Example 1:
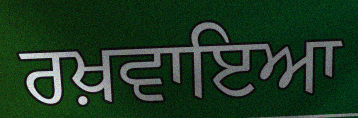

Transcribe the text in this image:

ਰਖ਼ਵਾਇਆ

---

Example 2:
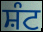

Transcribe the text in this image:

ਸ਼ੰਟ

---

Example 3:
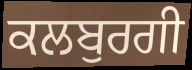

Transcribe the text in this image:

ਕਲਬੁਰਗੀ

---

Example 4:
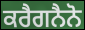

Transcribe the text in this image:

ਕਰੈਗਨੈਨੋ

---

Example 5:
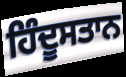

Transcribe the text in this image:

ਹਿੰਦੂਸਤਾਨ